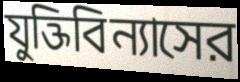
যুক্তিবিন্যাসের